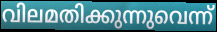
വിലമതിക്കുന്നുവെന്ന്